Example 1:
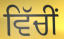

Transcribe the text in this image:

ਵਿੱਚੀਂ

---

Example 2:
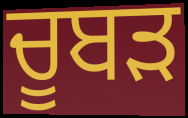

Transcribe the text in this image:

ਚੂਬੜ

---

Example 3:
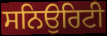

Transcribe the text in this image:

ਸਨਿਉਰਿਟੀ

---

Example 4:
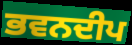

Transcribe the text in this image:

ਭਵਨਦੀਪ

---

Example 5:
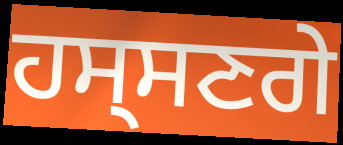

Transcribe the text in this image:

ਹਸ੍ਸਣਗੇ